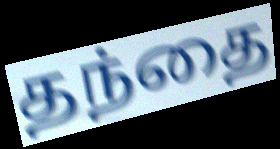
தந்தை